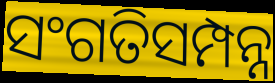
ସଂଗତିସମ୍ପନ୍ନ